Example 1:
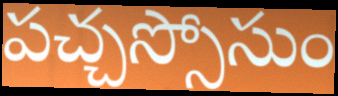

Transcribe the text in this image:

పచ్చస్సోసుం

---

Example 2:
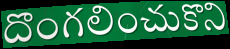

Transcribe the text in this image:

దొంగలించుకొని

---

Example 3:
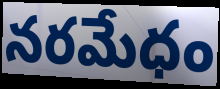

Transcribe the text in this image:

నరమేధం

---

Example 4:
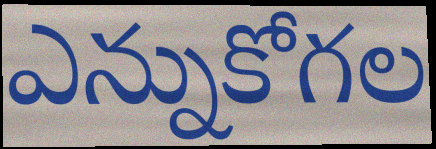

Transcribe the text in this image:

ఎన్నుకోగల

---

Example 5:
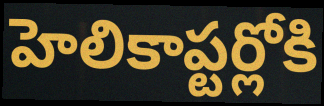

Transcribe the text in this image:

హెలికాప్టర్లోకి